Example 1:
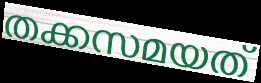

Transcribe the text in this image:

തക്കസമയത്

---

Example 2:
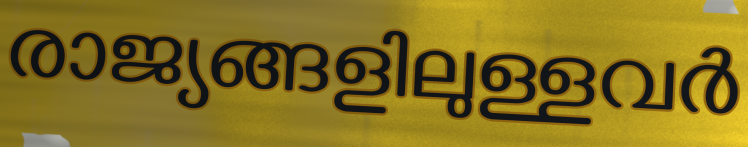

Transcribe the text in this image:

രാജ്യങ്ങളിലുള്ളവർ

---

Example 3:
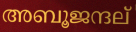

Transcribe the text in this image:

അബൂജന്ദല്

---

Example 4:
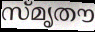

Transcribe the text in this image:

സ്മൃതൗ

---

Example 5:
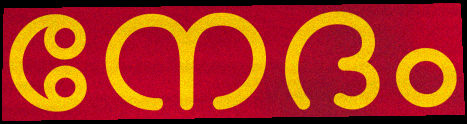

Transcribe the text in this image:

നേദം